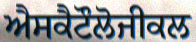
ਐਸਕੈਟੌਲੋਜੀਕਲ